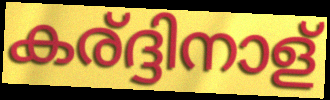
കര്ദ്ദിനാള്